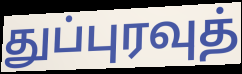
துப்புரவுத்